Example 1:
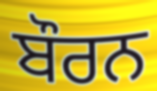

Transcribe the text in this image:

ਬੌਰਨ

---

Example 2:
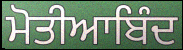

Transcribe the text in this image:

ਮੋਤੀਆਬਿੰਦ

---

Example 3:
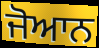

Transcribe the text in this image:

ਜੋਆਨ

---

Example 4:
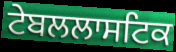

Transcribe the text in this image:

ਟੇਬਲਲਾਸਟਿਕ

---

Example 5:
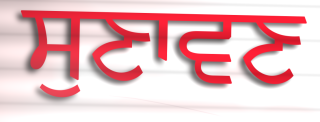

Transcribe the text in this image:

ਸੁਣਾਵਣ